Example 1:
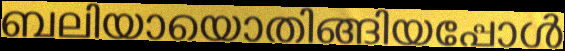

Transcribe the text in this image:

ബലിയായൊതിങ്ങിയപ്പോൾ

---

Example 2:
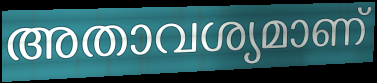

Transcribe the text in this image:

അതാവശ്യമാണ്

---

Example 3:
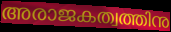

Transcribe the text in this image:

അരാജകത്വത്തിനു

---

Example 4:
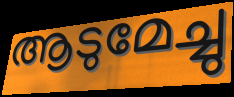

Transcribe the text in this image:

ആടുമേച്ചു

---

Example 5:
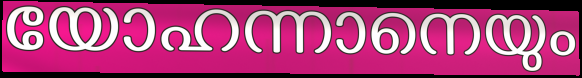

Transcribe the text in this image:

യോഹന്നാനെയും